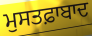
ਮੁਸਤਫ਼ਾਬਾਦ